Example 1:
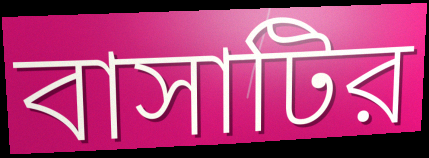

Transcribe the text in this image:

বাসাটির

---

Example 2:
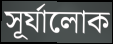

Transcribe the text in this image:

সূর্যালোক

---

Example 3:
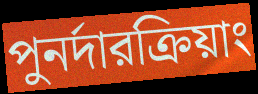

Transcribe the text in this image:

পুনর্দারক্রিয়াং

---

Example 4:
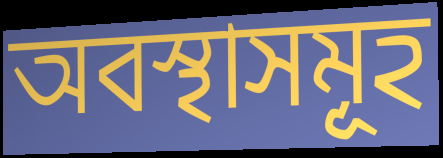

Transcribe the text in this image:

অবস্থাসমূহ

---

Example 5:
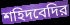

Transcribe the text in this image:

শহিদবেদির